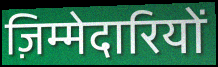
ज़िम्मेदारियों